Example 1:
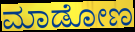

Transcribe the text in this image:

ಮಾಡೋಣ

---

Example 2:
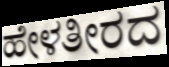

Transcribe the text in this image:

ಹೇಳತೀರದ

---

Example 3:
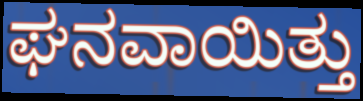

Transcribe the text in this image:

ಘನವಾಯಿತ್ತು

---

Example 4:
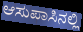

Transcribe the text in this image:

ಆಸುಪಾಸಿನಲ್ಲಿ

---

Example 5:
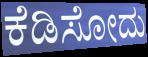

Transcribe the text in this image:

ಕೆಡಿಸೋದು